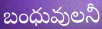
బంధువులనీ